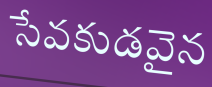
సేవకుడవైన